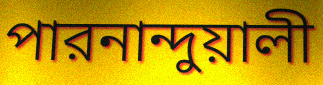
পারনান্দুয়ালী